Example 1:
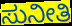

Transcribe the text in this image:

ಸುನೀತಿ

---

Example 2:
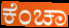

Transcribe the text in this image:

ಕೆಂಚಾ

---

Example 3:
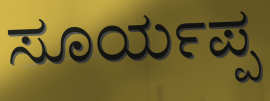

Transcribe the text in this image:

ಸೂರ್ಯಪ್ಪ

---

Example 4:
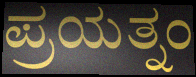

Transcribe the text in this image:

ಪ್ರಯತ್ನಂ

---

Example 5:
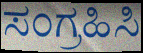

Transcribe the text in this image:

ಸಂಗ್ರಹಿಸಿ